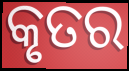
କୃତର